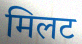
मिलट